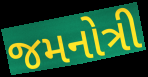
જમનોત્રી